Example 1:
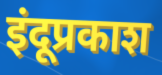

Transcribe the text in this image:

इंदूप्रकाश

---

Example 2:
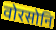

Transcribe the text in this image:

वोरसोनि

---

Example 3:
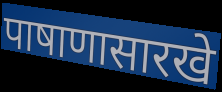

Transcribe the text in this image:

पाषाणासारखे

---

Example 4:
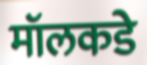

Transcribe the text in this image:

मॉलकडे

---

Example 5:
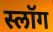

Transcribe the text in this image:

स्लॉग